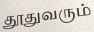
தூதுவரும்